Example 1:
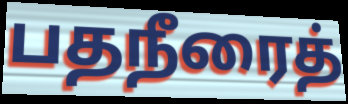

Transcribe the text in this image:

பதநீரைத்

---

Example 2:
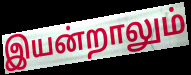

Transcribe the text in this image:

இயன்றாலும்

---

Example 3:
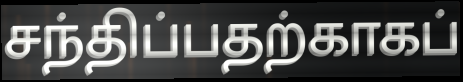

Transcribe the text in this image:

சந்திப்பதற்காகப்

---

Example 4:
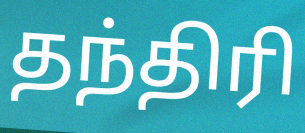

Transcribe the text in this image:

தந்திரி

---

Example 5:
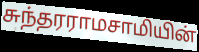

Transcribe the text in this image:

சுந்தரராமசாமியின்